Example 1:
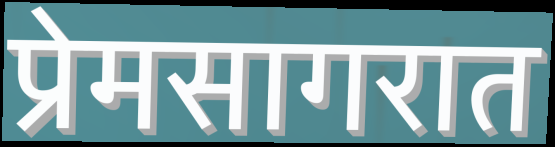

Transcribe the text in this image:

प्रेमसागरात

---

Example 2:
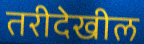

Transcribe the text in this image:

तरीदेखील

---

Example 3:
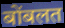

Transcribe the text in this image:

बोंबलत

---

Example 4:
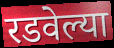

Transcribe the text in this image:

रडवेल्या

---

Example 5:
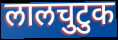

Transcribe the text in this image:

लालचुटुक